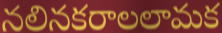
నలినకరాలలామక